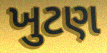
ખુટણ